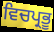
ਵਿਚਪ੍ਰਭੂ